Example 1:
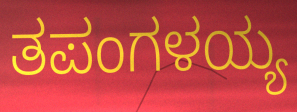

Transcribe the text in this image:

ತಪಂಗಳಯ್ಯ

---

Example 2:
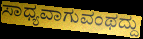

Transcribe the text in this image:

ಸಾಧ್ಯವಾಗುವಂಥದ್ದು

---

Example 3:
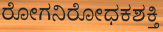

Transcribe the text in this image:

ರೋಗನಿರೋಧಕಶಕ್ತಿ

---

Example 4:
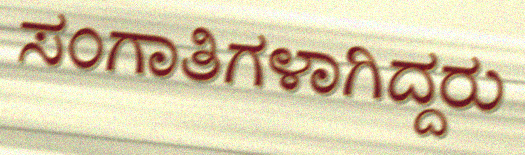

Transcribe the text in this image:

ಸಂಗಾತಿಗಳಾಗಿದ್ದರು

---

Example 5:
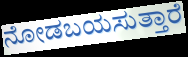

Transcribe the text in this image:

ನೋಡಬಯಸುತ್ತಾರೆ